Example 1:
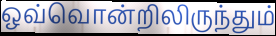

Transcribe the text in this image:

ஒவ்வொன்றிலிருந்தும்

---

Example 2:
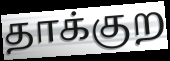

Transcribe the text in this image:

தாக்குற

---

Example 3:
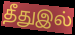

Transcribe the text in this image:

தீதுஇல்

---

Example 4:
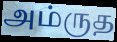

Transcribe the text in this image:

அம்ருத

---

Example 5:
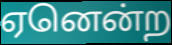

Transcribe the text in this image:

ஏனென்ற